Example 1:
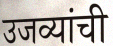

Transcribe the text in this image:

उजव्यांची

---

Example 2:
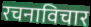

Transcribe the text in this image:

रचनाविचार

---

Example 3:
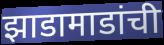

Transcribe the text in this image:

झाडामाडांची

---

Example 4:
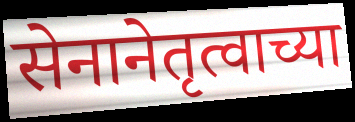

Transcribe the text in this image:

सेनानेतृत्वाच्या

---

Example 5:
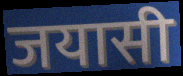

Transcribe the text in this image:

जयासी